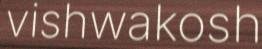
vishwakosh